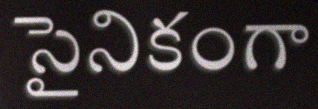
సైనికంగా